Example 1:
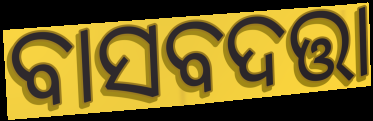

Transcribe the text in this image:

ବାସବଦତ୍ତା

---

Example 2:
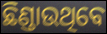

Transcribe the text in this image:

ଛିଣ୍ଡାଉଥିବେ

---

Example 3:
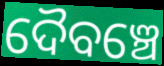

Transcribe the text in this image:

ଦୈବଞ୍ଚେ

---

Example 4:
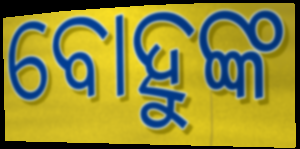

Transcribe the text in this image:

ବୋହୁଙ୍କ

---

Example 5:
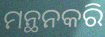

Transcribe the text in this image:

ମନ୍ଥନକରି